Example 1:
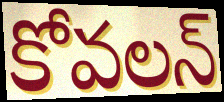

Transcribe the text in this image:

కోవలన్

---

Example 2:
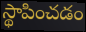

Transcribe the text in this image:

స్థాపించడం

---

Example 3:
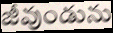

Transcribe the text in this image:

జీవుండును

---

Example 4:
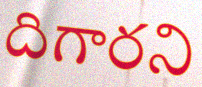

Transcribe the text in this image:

దిగారని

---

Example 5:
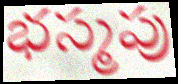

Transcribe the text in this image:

భస్మపు